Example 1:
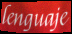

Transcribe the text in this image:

lenguaje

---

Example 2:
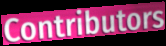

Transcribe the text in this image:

Contributors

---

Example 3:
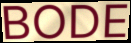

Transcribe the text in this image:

BODE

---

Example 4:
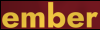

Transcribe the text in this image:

ember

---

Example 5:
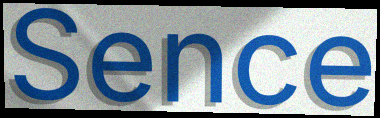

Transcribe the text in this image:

Sence